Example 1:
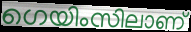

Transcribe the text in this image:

ഗെയിംസിലാണ്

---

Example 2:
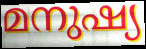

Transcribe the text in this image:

മനുഷ്യ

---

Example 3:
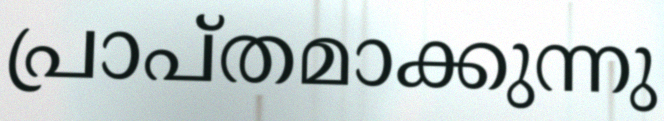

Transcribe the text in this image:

പ്രാപ്തമാക്കുന്നു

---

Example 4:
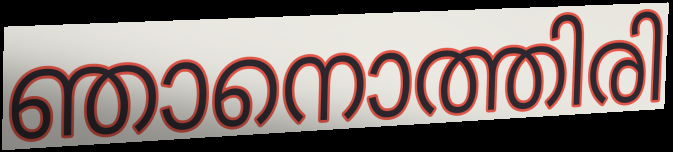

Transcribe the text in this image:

ഞാനൊത്തിരി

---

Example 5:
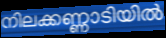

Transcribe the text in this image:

നിലക്കണ്ണാടിയിൽ